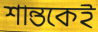
শান্তকেই